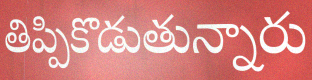
తిప్పికొడుతున్నారు